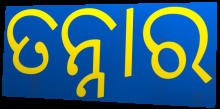
ତନ୍ନାର